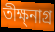
তীক্ষ্নাগ্র